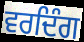
ਵਰਦਿੰਗ